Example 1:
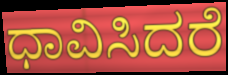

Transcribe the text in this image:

ಧಾವಿಸಿದರೆ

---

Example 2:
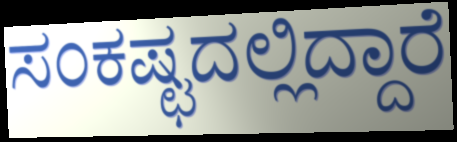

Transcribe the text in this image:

ಸಂಕಷ್ಟದಲ್ಲಿದ್ದಾರೆ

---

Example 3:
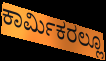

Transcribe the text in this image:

ಕಾರ್ಮಿಕರಲ್ಲೂ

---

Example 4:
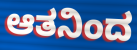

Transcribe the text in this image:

ಆತನಿಂದ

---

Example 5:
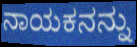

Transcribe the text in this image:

ನಾಯಕನನ್ನು